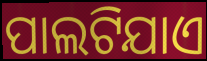
ପାଲଟିଯାଏ